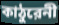
কাঠুরেনী